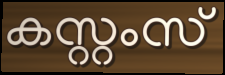
കസ്റ്റംസ്